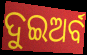
ଦୁଇଅର୍ବ